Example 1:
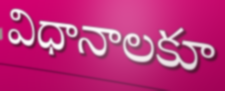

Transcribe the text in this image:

విధానాలకూ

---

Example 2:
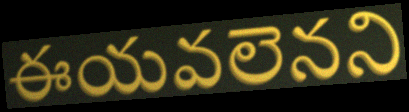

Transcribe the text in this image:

ఈయవలెనని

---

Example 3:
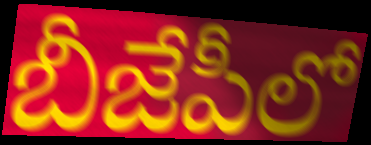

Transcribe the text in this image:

బీజేపీలో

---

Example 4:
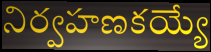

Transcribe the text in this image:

నిర్వహణకయ్యే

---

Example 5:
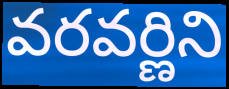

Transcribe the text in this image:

వరవర్ణిని